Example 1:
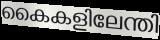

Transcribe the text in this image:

കൈകളിലേന്തി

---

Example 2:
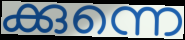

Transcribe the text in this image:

ക്കുന്നെ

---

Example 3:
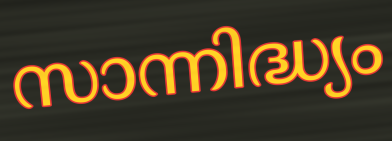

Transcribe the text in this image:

സാന്നിദ്ധ്യം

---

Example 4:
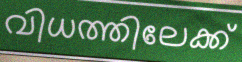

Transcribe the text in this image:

വിധത്തിലേക്ക്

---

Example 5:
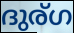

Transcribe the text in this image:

ദുര്ഗ